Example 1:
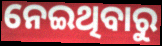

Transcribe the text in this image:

ନେଇଥିବାରୁ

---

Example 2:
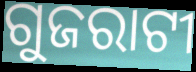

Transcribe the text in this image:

ଗୁଜରାଟୀ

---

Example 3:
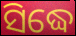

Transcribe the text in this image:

ସିଦ୍ଧେ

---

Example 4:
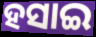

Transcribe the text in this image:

ହସାଇ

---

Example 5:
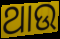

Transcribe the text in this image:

ଥାଉ